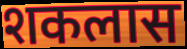
शकलास